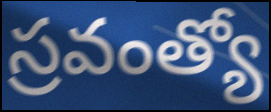
స్రవంత్యో